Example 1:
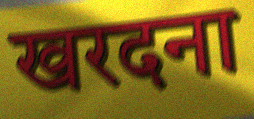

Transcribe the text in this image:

खरदना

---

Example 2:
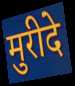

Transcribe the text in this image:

मुरीदे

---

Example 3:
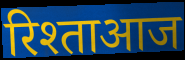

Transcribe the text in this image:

रिश्ताआज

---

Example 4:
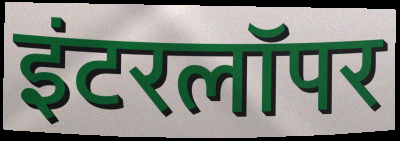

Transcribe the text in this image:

इंटरलॉपर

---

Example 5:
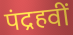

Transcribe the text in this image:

पंद्रहवीं